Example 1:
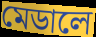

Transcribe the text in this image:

মেডালে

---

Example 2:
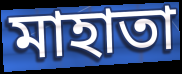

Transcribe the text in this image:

মাহাতা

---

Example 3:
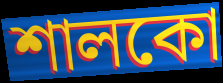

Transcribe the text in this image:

শালকো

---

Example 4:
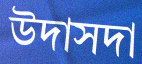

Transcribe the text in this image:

উদাসদা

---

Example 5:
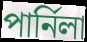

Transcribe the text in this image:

পার্নিলা